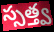
స్సత్త్వ